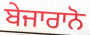
ਬੇਜਾਰਾਨੋ